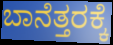
ಬಾನೆತ್ತರಕ್ಕೆ